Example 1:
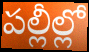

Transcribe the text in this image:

పల్లీల్లో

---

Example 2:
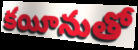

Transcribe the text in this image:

కయీనుతో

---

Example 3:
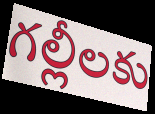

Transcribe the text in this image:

గల్లీలకు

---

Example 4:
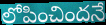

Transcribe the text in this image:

లోపించిందనే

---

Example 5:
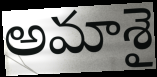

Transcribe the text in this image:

అమాశై